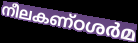
നീലകണ്ഠശർമ